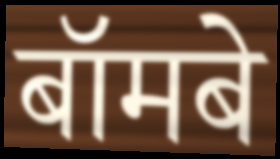
बॉमबे